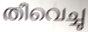
തീവെച്ചു